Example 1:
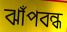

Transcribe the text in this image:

ঝাঁপবন্ধ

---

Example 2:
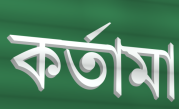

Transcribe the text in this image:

কর্তামা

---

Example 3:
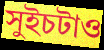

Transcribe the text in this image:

সুইচটাও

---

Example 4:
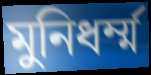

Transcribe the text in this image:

মুনিধর্ম্ম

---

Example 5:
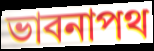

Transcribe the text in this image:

ভাবনাপথ